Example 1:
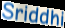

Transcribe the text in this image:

Sriddhi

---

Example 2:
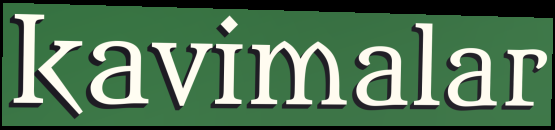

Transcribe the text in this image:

kavimalar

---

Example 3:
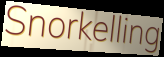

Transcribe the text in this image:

Snorkelling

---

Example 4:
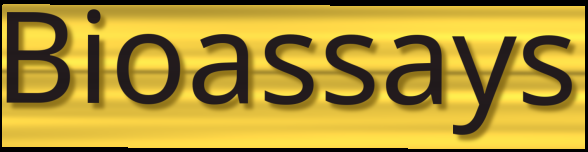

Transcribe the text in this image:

Bioassays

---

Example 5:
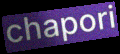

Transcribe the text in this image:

chapori